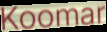
Koomar